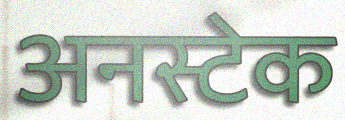
अनस्टेक